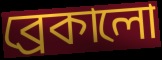
ব্রেকালো